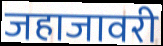
जहाजावरी